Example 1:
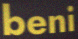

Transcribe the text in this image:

beni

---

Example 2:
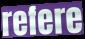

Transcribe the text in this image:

refere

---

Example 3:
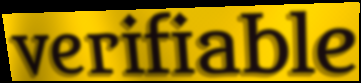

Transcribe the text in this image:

verifiable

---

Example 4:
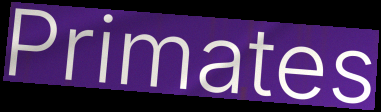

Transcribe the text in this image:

Primates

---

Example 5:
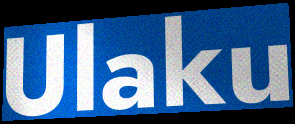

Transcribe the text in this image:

Ulaku